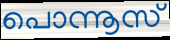
പൊന്നൂസ്